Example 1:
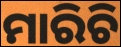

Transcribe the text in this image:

ମାରିଚି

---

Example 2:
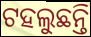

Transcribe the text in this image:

ଟହଲୁଛନ୍ତି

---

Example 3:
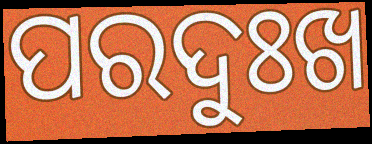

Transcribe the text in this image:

ପରଦୁଃଖ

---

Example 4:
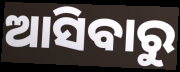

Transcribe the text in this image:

ଆସିବାରୁ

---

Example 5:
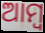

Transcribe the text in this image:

ଆମ୍ୱ